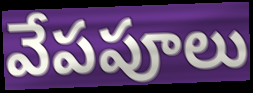
వేపపూలు